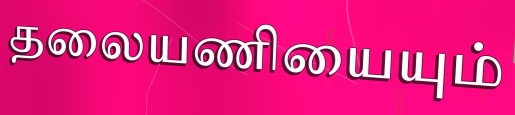
தலையணியையும்